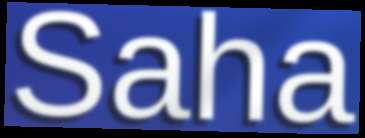
Saha